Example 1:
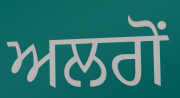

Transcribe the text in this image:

ਅਲਗੋਂ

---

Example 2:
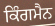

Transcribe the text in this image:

ਕਿੰਗਮੈਨ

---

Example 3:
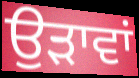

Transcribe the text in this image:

ਉੜਾਵਾਂ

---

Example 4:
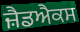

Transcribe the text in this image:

ਜ਼ੈਡਐਕਸ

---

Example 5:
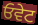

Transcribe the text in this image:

ਓਵੇਟ